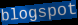
blogspot